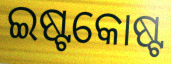
ଇଷ୍ଟକୋଷ୍ଟ